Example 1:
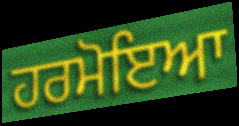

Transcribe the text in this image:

ਹਰਮੋਇਆ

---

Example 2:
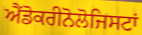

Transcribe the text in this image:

ਐਂਡੋਕਰੀਨੋਲੋਜਿਸਟਾਂ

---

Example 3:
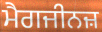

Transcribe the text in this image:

ਮੈਗਜੀਨਜ਼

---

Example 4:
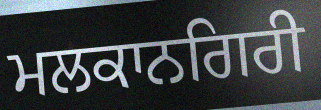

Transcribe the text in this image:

ਮਲਕਾਨਗਿਰੀ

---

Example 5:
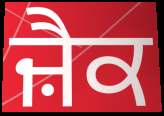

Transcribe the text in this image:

ਜ਼ੈਕ